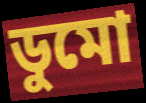
ডুমো